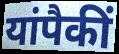
यांपैकीं